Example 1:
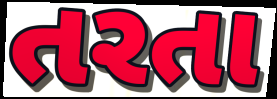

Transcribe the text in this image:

તરતા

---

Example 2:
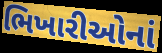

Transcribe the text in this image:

ભિખારીઓનાં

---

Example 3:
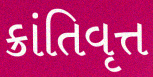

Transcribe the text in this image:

ક્રાંતિવૃત્ત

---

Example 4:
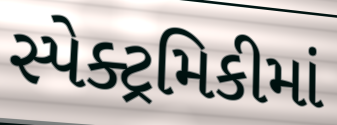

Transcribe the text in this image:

સ્પેક્ટ્રમિકીમાં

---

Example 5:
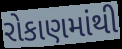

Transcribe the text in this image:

રોકાણમાંથી